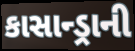
કાસાન્ડ્રાની